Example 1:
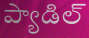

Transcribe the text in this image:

ప్యాడిల్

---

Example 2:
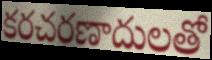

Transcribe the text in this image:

కరచరణాదులతో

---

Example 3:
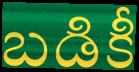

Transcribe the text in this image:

బడికీ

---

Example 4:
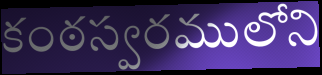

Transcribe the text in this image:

కంఠస్వరములోని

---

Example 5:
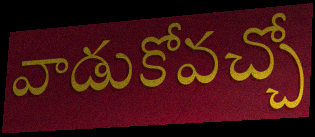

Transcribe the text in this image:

వాడుకోవచ్చో